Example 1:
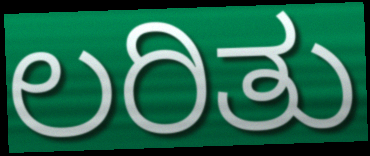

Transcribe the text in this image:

ಲರಿತು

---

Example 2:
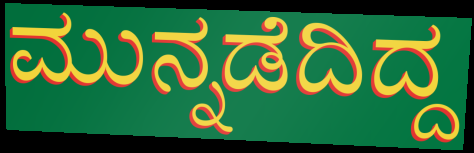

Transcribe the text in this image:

ಮುನ್ನಡೆದಿದ್ದ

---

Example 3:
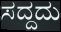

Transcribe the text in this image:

ಸದ್ದದು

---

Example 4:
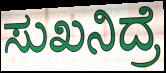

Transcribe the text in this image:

ಸುಖನಿದ್ರೆ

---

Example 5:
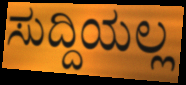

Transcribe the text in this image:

ಸುದ್ದಿಯಲ್ಲ